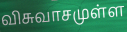
விசுவாசமுள்ள